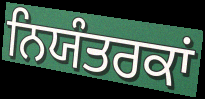
ਨਿਯੰਤਰਕਾਂ